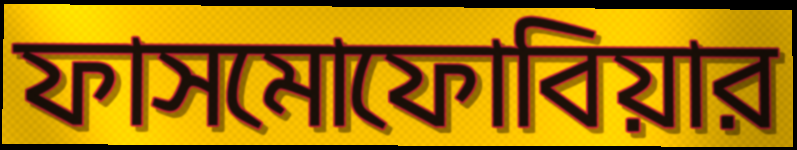
ফাসমোফোবিয়ার